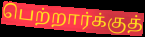
பெற்றார்க்குத்